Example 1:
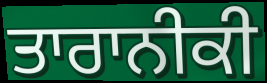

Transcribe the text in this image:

ਤਾਰਾਨੀਕੀ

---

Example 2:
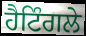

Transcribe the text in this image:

ਹੈਟਿੰਗਲੇ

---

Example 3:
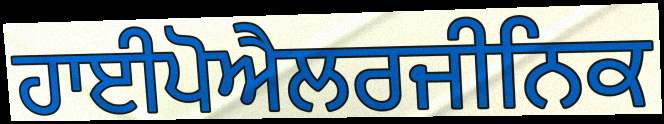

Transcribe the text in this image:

ਹਾਈਪੋਐਲਰਜੀਨਿਕ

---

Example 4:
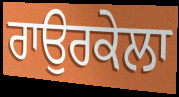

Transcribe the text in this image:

ਰਾਉਰਕੇਲਾ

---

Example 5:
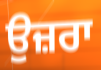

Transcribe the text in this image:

ਉਜ਼ਰਾ